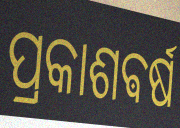
ପ୍ରକାଶଵର୍ଷ